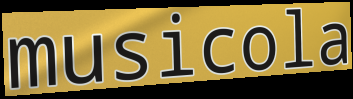
musicola